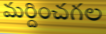
మర్దించగల